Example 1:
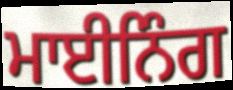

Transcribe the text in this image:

ਮਾਈਨਿੰਗ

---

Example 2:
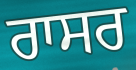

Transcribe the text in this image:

ਰਾਸਰ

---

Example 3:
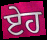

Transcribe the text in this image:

ਏਹ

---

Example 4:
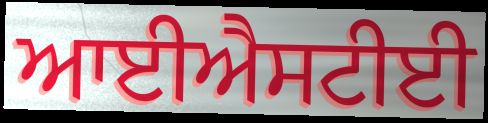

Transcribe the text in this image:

ਆਈਐਸਟੀਈ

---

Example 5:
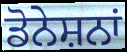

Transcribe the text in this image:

ਡੋਨੇਸ਼ਨਾਂ